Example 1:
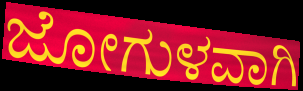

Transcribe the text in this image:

ಜೋಗುಳವಾಗಿ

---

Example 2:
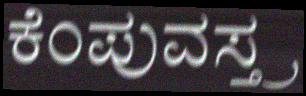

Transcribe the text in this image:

ಕೆಂಪುವಸ್ತ್ರ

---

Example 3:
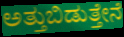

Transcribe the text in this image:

ಅತ್ತುಬಿಡುತ್ತೇನೆ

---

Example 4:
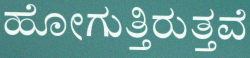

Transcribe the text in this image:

ಹೋಗುತ್ತಿರುತ್ತವೆ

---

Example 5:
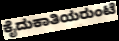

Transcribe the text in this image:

ಕೈದುಕಾತಿಯರುಂಟೆ